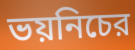
ভয়নিচের